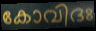
കോവിദഃ